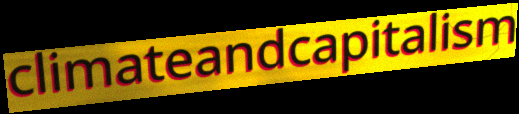
climateandcapitalism